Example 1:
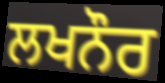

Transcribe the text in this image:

ਲਖਨੌਰ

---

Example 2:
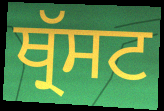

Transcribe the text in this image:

ਥ੍ਰੱਸਟ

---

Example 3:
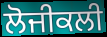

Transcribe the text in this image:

ਲੋਜੀਕਲੀ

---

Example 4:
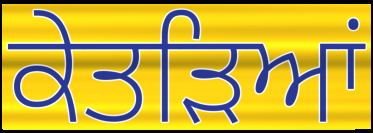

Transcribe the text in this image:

ਕੇਤੜਿਆਂ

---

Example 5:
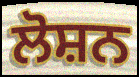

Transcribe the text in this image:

ਲੋਸ਼ਨ